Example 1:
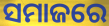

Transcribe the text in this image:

ସମାଜରେ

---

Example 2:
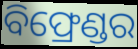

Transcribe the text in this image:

ବିଫ୍ରେଣ୍ଡର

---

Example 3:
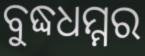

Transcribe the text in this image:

ବୁଦ୍ଧଧମ୍ମର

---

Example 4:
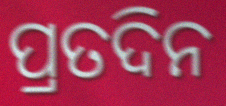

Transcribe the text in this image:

ପ୍ରତଦିନ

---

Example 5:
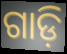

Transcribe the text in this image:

ଗାଡ଼ି